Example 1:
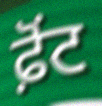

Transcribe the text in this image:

ਫ਼ੋਂਟ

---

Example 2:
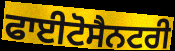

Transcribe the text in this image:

ਫਾਈਟੋਸੈਨਟਰੀ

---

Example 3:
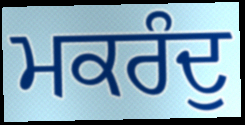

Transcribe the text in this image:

ਮਕਰੰਦੁ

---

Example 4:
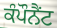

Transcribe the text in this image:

ਕੰਪੌਨੈਂਟ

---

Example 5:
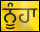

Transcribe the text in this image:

ਨੂੰਹਾ